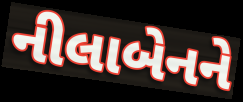
નીલાબેનને